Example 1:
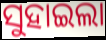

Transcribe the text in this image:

ସୁହାଇଲା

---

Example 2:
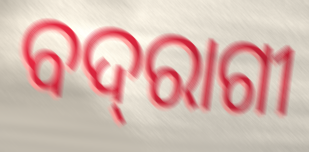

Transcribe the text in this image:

ବଦ୍‌ରାଗୀ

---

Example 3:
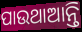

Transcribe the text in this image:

ପାଉଥାଆନ୍ତି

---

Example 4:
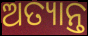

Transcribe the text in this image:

ଅତ୍ୟାନ୍ତ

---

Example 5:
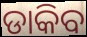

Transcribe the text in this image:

ଡାକିବ